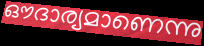
ഔദാര്യമാണെന്നു